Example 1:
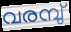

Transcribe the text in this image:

വരമ്പു്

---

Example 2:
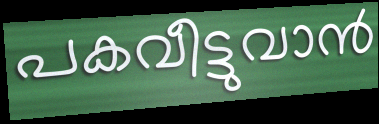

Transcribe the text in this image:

പകവീട്ടുവാൻ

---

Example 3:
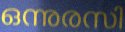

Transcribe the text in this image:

ഒന്നുരസി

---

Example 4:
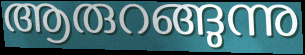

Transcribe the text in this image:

ആരുറങ്ങുന്നു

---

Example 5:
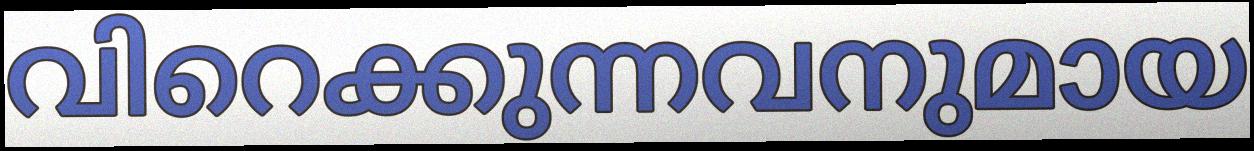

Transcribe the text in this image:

വിറെക്കുന്നവനുമായ